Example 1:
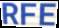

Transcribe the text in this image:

RFE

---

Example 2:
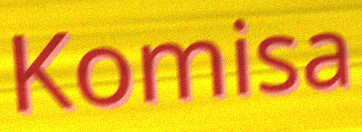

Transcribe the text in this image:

Komisa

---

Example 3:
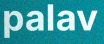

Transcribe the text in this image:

palav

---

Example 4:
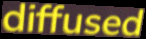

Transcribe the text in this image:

diffused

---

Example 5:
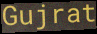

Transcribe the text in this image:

Gujrat